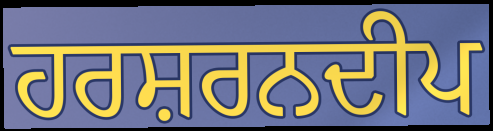
ਹਰਸ਼ਰਨਦੀਪ